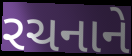
રચનાને